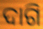
ଦାଗି